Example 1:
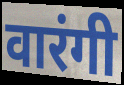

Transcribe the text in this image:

वारंगी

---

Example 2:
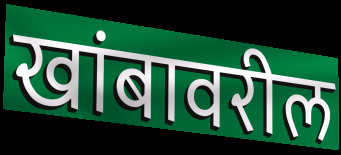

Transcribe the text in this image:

खांबावरील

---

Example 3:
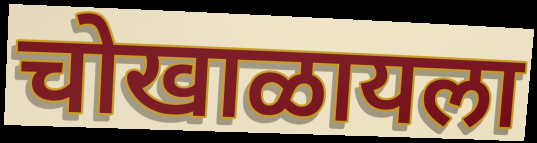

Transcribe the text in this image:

चोखाळायला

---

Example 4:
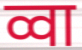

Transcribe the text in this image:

व्वा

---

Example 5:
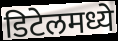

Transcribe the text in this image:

डिटेलमध्ये